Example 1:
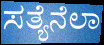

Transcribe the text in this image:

ಸತ್ಯೆನೆಲಾ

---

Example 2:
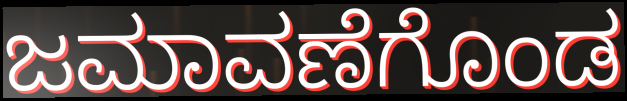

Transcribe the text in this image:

ಜಮಾವಣೆಗೊಂಡ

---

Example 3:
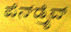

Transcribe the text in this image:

ಪೆನ್‌ಡ್ರೈವ್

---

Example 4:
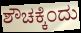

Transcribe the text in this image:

ಶೌಚಕ್ಕೆಂದು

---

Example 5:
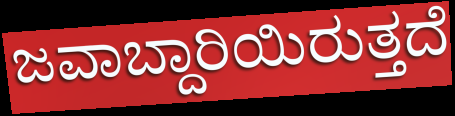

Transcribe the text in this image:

ಜವಾಬ್ದಾರಿಯಿರುತ್ತದೆ